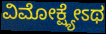
ವಿಮೋಕ್ಷ್ಯೇಽಥ